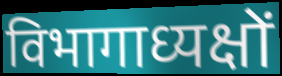
विभागाध्‍यक्षों